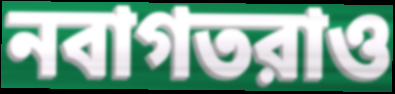
নবাগতরাও